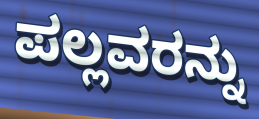
ಪಲ್ಲವರನ್ನು